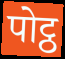
पोट्ठ